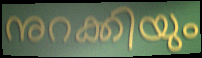
നുറക്കിയും